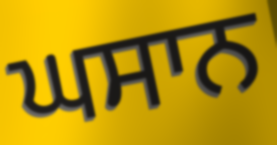
ਘਸਾਨ